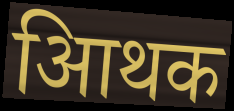
आिथक